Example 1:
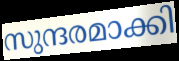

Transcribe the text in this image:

സുന്ദരമാക്കി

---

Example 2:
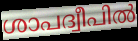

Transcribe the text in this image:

ശാപദ്വീപിൽ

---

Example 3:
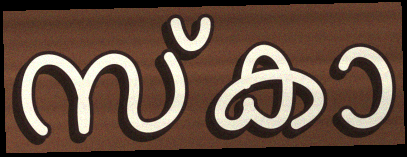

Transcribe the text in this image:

സ്കാ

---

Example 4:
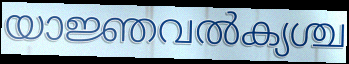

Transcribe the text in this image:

യാജ്ഞവൽക്യശ്ച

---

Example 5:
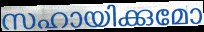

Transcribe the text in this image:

സഹായിക്കുമോ